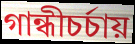
গান্ধীচর্চায়